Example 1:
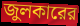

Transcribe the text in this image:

জুলকারের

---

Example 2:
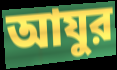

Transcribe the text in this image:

আযুর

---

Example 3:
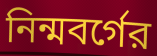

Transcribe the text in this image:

নিন্মবর্গের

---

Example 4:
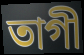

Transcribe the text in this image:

তাগী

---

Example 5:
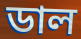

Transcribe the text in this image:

ডাল